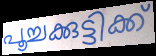
പൂച്ചക്കുട്ടിക്ക്